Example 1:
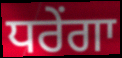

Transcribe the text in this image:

ਧਰੇਂਗਾ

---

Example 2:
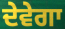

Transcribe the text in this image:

ਦੇਵੇਗਾ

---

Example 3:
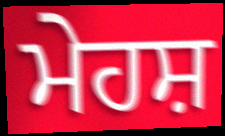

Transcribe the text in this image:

ਮੇਹਸ਼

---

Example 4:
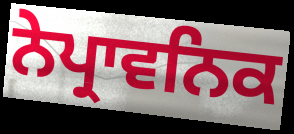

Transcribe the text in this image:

ਨੇਪ੍ਰਾਵਨਿਕ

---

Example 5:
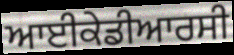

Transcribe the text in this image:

ਆਈਕੇਡੀਆਰਸੀ